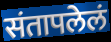
संतापलेलं